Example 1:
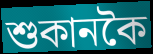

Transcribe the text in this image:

শুকানকৈ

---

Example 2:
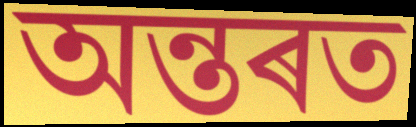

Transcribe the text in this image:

অন্তৰত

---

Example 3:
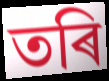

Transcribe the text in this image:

তৰি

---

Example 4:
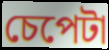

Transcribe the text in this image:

চেপেটা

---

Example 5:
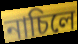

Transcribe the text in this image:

নাচিলে